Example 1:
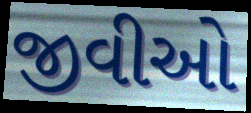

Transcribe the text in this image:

જીવીઓ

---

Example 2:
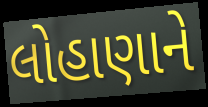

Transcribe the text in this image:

લોહાણાને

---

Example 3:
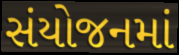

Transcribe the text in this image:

સંયોજનમાં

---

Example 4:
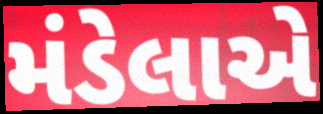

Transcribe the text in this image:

મંડેલાએ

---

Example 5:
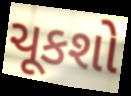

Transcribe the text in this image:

ચૂકશો